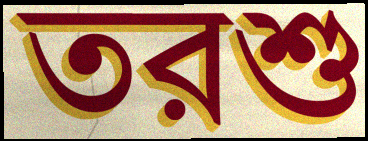
তরশু